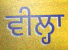
ਵੀਲ੍ਹਾ